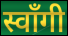
स्वाँगी